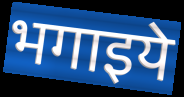
भगाइये